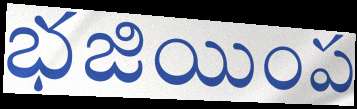
భజియింప